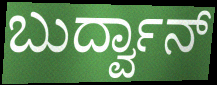
ಬುರ್ದ್ವಾನ್